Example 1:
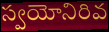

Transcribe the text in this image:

స్వయోనిరివ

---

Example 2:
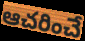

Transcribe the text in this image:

ఆచరించే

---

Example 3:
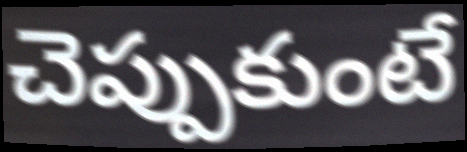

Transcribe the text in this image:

చెప్పుకుంటే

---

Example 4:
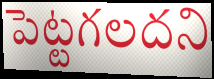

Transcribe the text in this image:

పెట్టగలదని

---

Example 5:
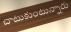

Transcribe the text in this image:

చాటుకుంటున్నారు